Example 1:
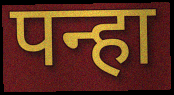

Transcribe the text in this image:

पन्हा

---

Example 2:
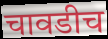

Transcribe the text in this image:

चावडीच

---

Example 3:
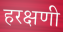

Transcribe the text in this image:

हरक्षणी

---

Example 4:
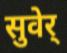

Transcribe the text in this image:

सुवेर्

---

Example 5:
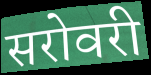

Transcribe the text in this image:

सरोवरी